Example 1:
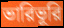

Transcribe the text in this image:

ভারিভূরি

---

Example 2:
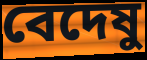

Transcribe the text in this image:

বেদেষু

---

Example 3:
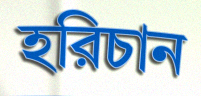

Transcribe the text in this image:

হরিচান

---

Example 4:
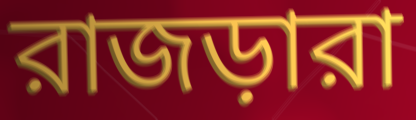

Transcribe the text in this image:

রাজড়ারা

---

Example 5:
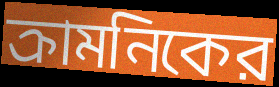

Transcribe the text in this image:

ক্রামনিকের